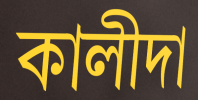
কালীদা